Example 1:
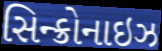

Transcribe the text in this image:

સિન્ક્રોનાઇઝ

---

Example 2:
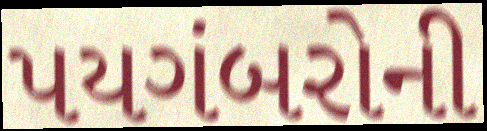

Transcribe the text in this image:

પયગંબરોની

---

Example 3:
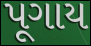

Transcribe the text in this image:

પૂગાય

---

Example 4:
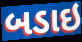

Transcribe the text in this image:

બડાઇ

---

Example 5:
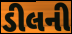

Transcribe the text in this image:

ડીલની